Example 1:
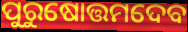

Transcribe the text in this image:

ପୁରୁଷୋତ୍ତମଦେବ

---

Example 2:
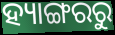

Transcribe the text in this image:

ହ୍ୟାଙ୍ଗରରୁ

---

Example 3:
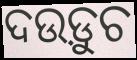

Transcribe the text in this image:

ଦଉଡ଼ୁଚ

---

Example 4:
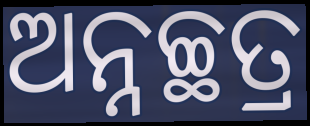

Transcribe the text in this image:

ଅନ୍ନଚ୍ଛତ୍ର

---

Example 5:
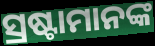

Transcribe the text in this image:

ସ୍ରଷ୍ଟାମାନଙ୍କ